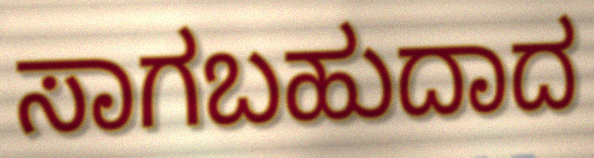
ಸಾಗಬಹುದಾದ